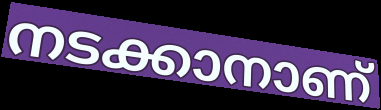
നടക്കാനാണ്